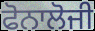
ਫੋਨਾਲੋਜੀ